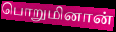
பொறுமினான்